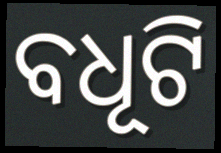
ବଧୂଟି